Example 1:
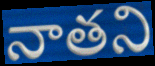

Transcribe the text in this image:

నాతని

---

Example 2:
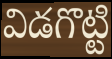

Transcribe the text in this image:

విడగొట్టి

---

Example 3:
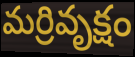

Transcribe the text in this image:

మర్రివృక్షం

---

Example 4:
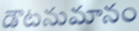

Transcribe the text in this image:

డౌటనుమానం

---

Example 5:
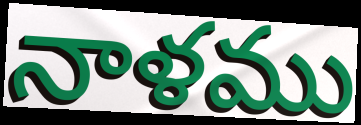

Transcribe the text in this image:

నాళము